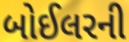
બોઈલરની